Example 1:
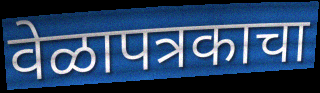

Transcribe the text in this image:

वेळापत्रकाचा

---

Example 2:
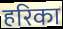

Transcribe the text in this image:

हरिका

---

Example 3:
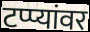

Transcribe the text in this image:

टप्प्यांवर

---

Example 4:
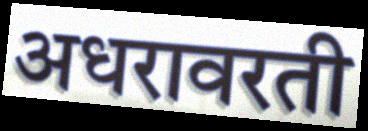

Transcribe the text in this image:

अधरावरती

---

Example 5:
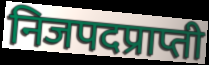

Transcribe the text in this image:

निजपदप्राप्ती